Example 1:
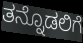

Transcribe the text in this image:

ತನ್ನೊಡಲಿಗೆ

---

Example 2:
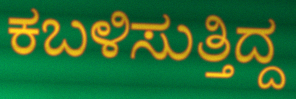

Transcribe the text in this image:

ಕಬಳಿಸುತ್ತಿದ್ದ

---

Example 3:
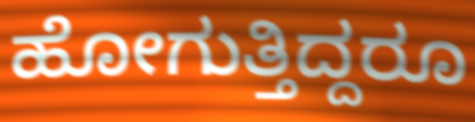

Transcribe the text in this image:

ಹೋಗುತ್ತಿದ್ದರೂ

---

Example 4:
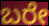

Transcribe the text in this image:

ಬರೇ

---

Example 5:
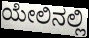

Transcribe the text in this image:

ಯೇಲಿನಲ್ಲಿ